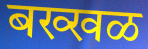
बख्खळ